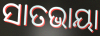
ସାତଭାୟା